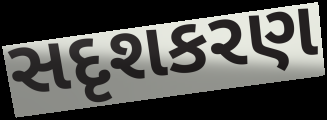
સદૃશકરણ